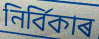
নিৰ্বিকাৰ